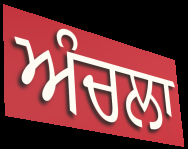
ਅੰਚਲਾ